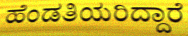
ಹೆಂಡತಿಯರಿದ್ದಾರೆ